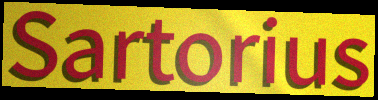
Sartorius